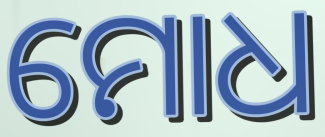
ମୋଧ